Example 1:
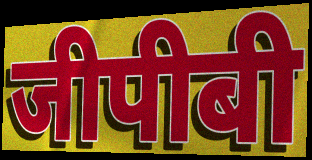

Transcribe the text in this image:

जीपीबी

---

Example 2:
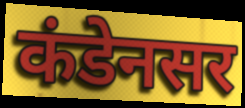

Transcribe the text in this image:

कंडेनसर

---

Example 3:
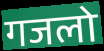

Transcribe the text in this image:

गजलो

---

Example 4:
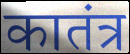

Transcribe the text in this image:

कातंत्र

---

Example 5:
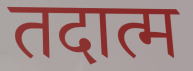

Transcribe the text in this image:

तदात्म